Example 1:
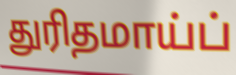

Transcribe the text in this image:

துரிதமாய்ப்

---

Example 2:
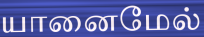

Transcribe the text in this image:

யானைமேல்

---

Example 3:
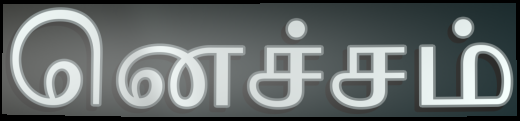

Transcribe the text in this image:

னெச்சம்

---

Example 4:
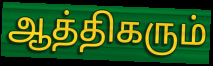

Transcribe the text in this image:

ஆத்திகரும்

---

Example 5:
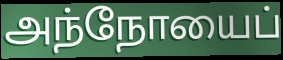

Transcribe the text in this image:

அந்நோயைப்